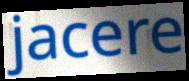
jacere